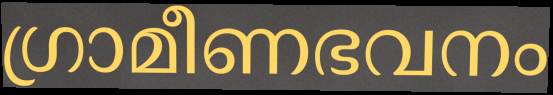
ഗ്രാമീണഭവനം